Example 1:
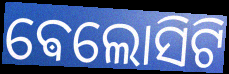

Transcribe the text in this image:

ଵେଲୋସିଟି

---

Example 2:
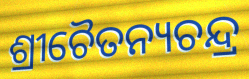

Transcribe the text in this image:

ଶ୍ରୀଚୈତନ୍ୟଚନ୍ଦ୍ର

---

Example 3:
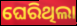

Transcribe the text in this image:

ଘେରିଥିଲା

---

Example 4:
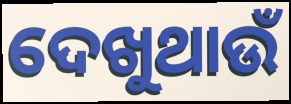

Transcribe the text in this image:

ଦେଖୁଥାଉଁ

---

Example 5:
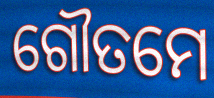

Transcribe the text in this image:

ଗୌତମେ